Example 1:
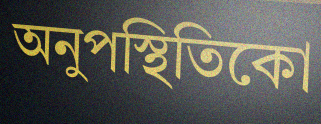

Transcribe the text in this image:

অনুপস্থিতিকো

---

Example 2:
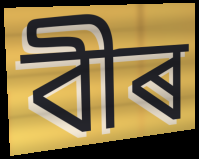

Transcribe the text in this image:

বীৰ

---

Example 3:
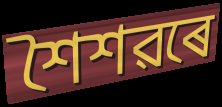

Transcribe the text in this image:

শৈশৱৰে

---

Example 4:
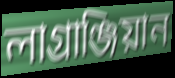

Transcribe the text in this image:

লাগ্ৰাঞ্জিয়ান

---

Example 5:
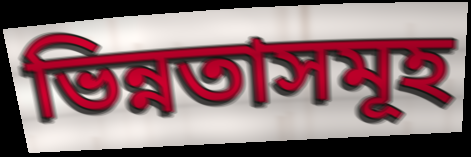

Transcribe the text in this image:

ভিন্নতাসমূহ